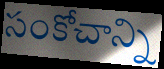
సంకోచాన్ని